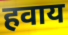
हवाय